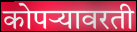
कोपऱ्यावरती